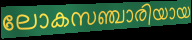
ലോകസഞ്ചാരിയായ